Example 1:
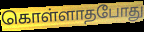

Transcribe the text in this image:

கொள்ளாதபோது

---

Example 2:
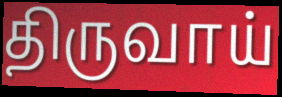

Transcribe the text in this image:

திருவாய்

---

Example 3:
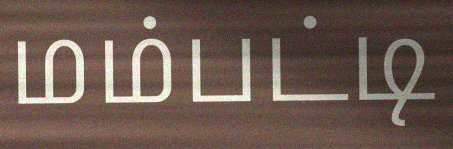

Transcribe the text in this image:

மம்பட்டி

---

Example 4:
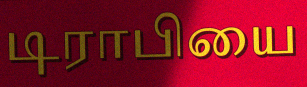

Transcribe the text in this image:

டிராபியை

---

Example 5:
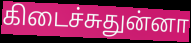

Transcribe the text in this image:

கிடைச்சுதுன்னா